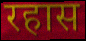
रहास